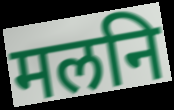
मलनि